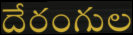
దేరంగుల